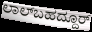
ಲಾಲ್‌ಬಹದ್ದೂರ್